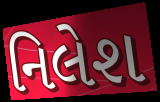
નિલેશ